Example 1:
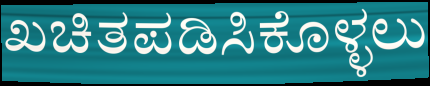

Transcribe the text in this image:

ಖಚಿತಪಡಿಸಿಕೊಳ್ಳಲು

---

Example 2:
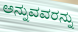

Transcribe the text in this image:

ಅನ್ನುವವರನ್ನು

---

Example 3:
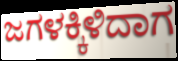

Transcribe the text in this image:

ಜಗಳಕ್ಕಿಳಿದಾಗ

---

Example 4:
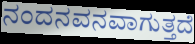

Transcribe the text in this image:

ನಂದನವನವಾಗುತ್ತದೆ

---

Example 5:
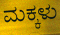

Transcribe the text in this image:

ಮಕ್ಕಳು